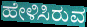
ಹೇಳಿಸಿರುವ